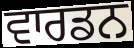
ਵਾਰਡਨ